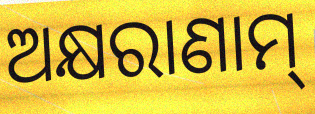
ଅକ୍ଷରାଣାମ୍